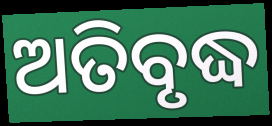
ଅତିବୃଦ୍ଧ